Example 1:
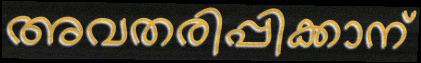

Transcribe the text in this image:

അവതരിപ്പിക്കാന്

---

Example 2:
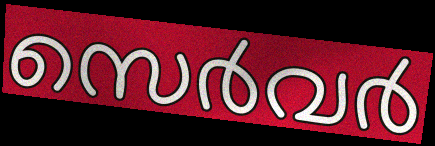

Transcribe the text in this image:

സെർവർ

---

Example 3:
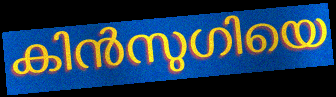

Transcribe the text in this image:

കിൻസുഗിയെ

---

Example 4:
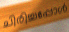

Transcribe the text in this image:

ചിരിച്ചപ്പോൾ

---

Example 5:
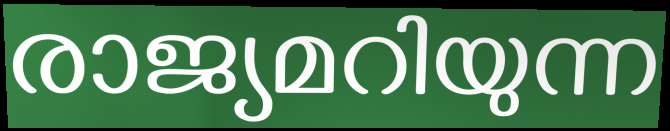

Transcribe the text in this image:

രാജ്യമറിയുന്ന